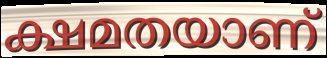
ക്ഷമതയാണ്